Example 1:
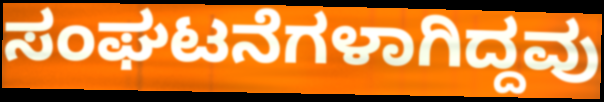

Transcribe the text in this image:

ಸಂಘಟನೆಗಳಾಗಿದ್ದವು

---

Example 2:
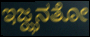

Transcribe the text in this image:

ಇಜ್ಝನತೋ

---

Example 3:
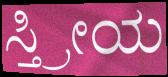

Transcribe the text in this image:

ಸ್ತ್ರೀಯ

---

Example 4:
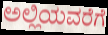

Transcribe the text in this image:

ಅಲ್ಲಿಯವರೆಗೆ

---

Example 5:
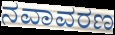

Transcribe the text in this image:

ನವಾವರಣ